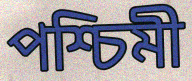
পশ্চিমী